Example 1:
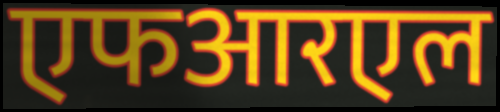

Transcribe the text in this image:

एफआरएल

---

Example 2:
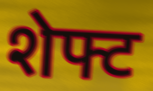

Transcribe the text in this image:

शेफ्ट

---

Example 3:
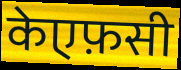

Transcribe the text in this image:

केएफ़सी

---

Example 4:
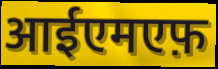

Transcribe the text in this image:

आईएमएफ़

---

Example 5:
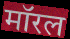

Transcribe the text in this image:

मॉरल